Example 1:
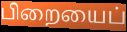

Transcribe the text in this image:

பிறையைப்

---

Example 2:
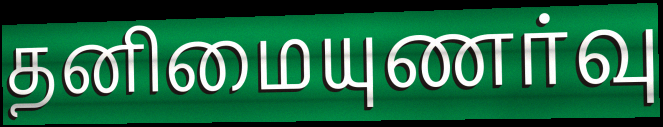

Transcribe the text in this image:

தனிமையுணர்வு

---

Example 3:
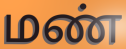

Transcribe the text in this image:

மண்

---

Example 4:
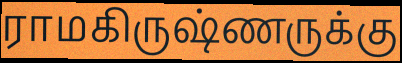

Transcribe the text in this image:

ராமகிருஷ்ணருக்கு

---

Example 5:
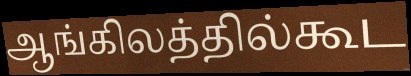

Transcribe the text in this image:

ஆங்கிலத்தில்கூட